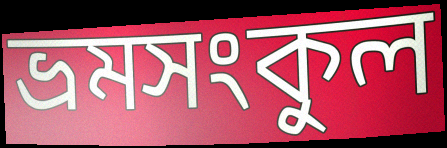
ভ্রমসংকুল